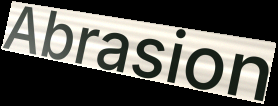
Abrasion